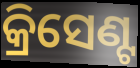
କ୍ରିସେଣ୍ଟ